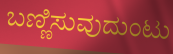
ಬಣ್ಣಿಸುವುದುಂಟು